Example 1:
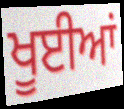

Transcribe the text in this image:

ਖੂਈਆਂ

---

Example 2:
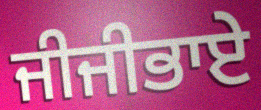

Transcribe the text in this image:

ਜੀਜੀਭਾਏ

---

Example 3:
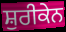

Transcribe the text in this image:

ਸ਼ੁਰੀਕੇਨ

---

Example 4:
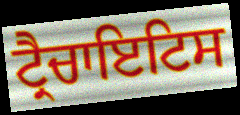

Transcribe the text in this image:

ਟ੍ਰੈਚਾਇਟਿਸ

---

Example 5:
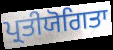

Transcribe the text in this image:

ਪ੍ਰਤੀਯੋਗਿਤਾ